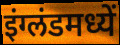
इंग्लंडमध्यें